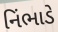
નિંભાડે